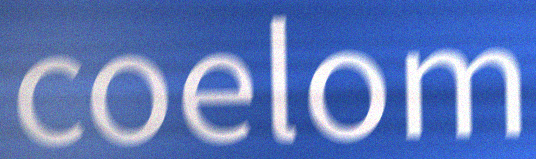
coelom